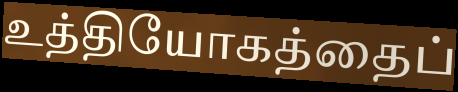
உத்தியோகத்தைப்